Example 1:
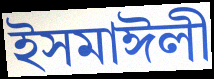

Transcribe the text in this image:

ইসমাঈলী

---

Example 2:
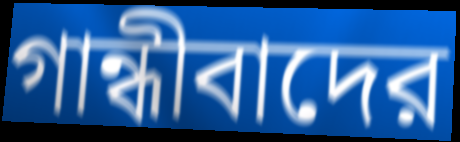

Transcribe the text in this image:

গান্ধীবাদের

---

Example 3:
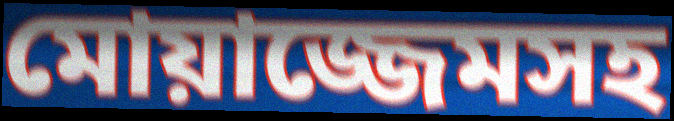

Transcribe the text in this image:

মোয়াজ্জেমসহ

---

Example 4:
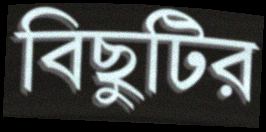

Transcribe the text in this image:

বিছুটির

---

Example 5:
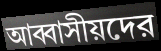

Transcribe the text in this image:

আব্বাসীয়দের